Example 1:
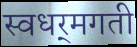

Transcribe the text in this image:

स्वधर्मगती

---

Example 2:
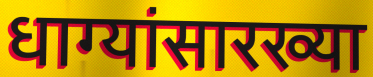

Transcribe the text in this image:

धाग्यांसारख्या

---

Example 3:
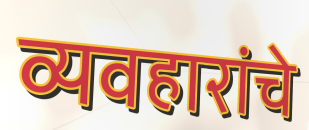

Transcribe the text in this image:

व्यवहारांचे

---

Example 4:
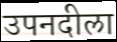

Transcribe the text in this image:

उपनदीला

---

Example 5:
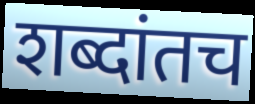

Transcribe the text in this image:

शब्दांतच